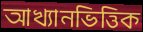
আখ্যানভিত্তিক